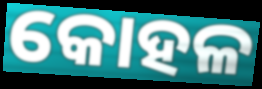
କୋହଳ